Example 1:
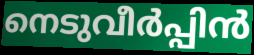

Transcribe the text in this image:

നെടുവീർപ്പിൻ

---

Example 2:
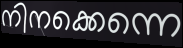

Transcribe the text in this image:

നിനക്കെന്നെ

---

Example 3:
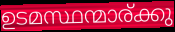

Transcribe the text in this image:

ഉടമസ്ഥന്മാര്ക്കു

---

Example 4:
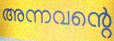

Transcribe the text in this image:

അന്നവന്റെ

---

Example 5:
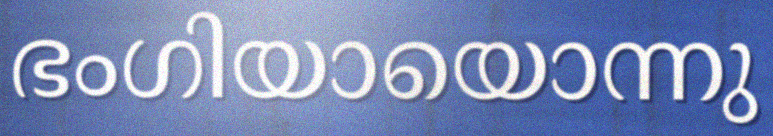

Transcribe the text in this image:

ഭംഗിയായൊന്നു